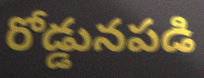
రోడ్డునపడి